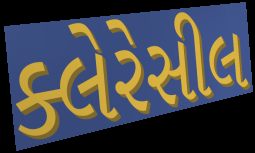
ક્લેરેસીલ